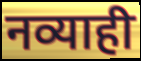
नव्याही